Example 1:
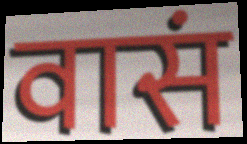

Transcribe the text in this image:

वासं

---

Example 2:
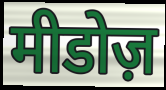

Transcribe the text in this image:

मीडोज़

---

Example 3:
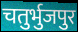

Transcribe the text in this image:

चतुर्भुजपुर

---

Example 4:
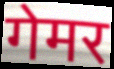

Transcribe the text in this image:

गेमर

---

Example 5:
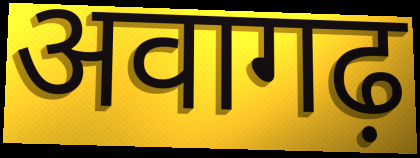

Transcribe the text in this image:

अवागढ़